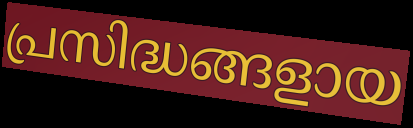
പ്രസിദ്ധങ്ങളായ